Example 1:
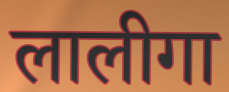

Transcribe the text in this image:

लालीगा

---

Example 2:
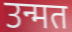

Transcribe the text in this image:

उन्मत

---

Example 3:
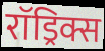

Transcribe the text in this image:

रॉड्रिक्स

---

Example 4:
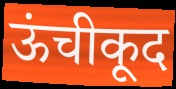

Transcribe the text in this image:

ऊंचीकूद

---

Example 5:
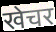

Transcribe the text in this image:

खेचर